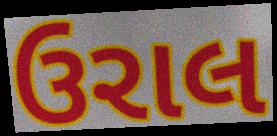
ઉરાલ